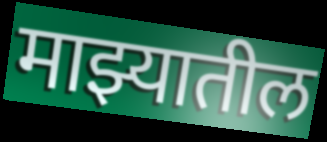
माझ्यातील